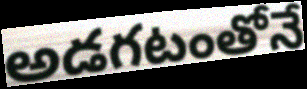
అడగటంతోనే